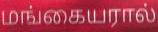
மங்கையரால்